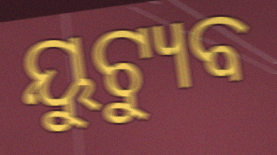
ୟୁଟ୍ୟୁବ